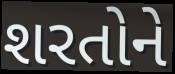
શરતોને